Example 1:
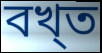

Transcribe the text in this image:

বখ্ত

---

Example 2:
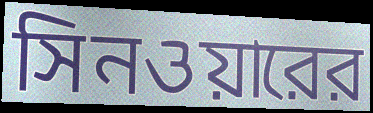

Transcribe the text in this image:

সিনওয়ারের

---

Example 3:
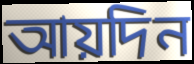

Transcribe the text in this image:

আয়দিন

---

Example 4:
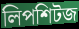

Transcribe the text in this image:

লিপশিটজ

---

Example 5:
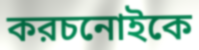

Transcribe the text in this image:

করচনোইকে